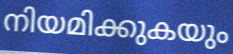
നിയമിക്കുകയും